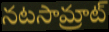
నటసామ్రాట్